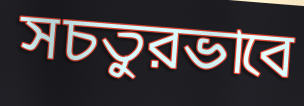
সচতুরভাবে